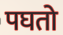
पघतो